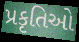
પ્રકૃતિઓ